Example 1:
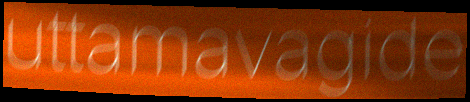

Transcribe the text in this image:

uttamavagide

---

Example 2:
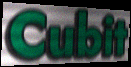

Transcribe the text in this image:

Cubit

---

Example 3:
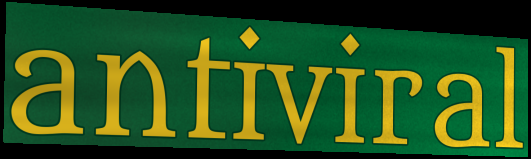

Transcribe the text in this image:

antiviral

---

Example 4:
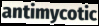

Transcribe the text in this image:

antimycotic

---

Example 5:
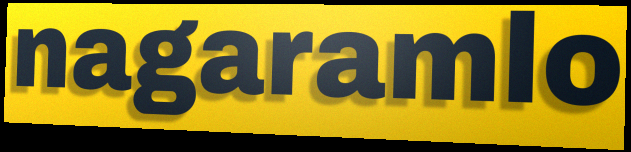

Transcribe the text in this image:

nagaramlo